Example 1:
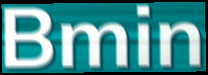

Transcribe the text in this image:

Bmin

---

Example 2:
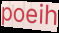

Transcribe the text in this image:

poeih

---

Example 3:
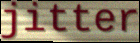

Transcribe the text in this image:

jitter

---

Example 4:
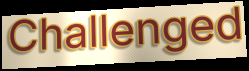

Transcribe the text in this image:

Challenged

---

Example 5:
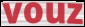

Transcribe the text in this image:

vouz